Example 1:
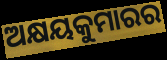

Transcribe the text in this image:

ଅକ୍ଷୟକୁମାରର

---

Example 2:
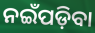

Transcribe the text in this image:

ନଇଁପଡ଼ିବା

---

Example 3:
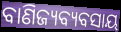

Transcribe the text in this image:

ବାଣିଜ୍ୟବ୍ୟବସାୟ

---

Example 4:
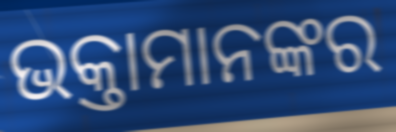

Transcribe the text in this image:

ଭକ୍ତାମାନଙ୍କର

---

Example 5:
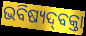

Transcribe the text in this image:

ଭବିଷ୍ୟଦ୍‌ବକ୍ତା